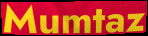
Mumtaz